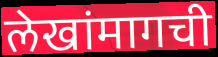
लेखांमागची